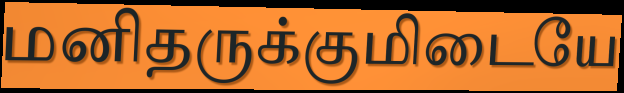
மனிதருக்குமிடையே